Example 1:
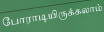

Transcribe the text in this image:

போராடியிருக்கலாம்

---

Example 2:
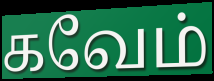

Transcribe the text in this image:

கவேம்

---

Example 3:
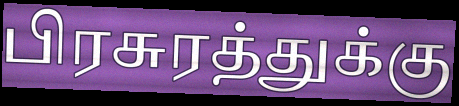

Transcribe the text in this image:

பிரசுரத்துக்கு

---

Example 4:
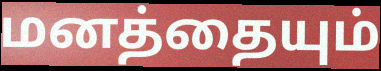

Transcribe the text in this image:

மனத்தையும்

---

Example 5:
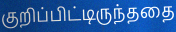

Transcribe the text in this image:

குறிப்பிட்டிருந்ததை